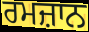
ਰਮਜ਼ਾਨ